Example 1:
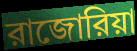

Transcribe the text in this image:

রাজোরিয়া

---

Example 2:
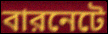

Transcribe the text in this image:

বারনেটে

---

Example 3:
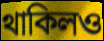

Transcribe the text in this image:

থাকিলও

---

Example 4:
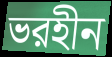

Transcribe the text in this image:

ভরহীন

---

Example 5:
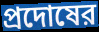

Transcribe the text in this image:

প্রদোষের